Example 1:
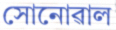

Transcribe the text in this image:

সোনোৱাল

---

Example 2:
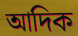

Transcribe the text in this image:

আদিক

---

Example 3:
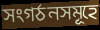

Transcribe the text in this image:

সংগঠনসমূহে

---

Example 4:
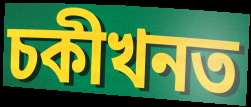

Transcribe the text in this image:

চকীখনত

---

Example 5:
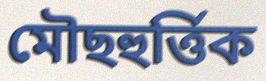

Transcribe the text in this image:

মৌছহুৰ্ত্তিক